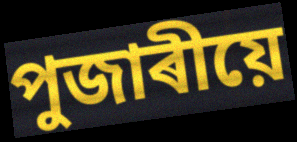
পুজাৰীয়ে